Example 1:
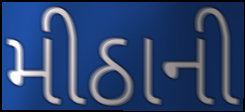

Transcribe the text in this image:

મીઠાની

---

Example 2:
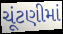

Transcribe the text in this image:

ચૂંટણીમાં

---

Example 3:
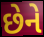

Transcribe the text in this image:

છેને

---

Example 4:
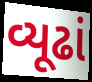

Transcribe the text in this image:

વ્યૂઢાં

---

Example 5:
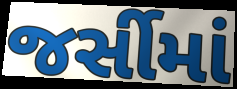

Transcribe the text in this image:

જર્સીમાં